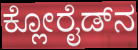
ಕ್ಲೋರೈಡ್‍ನ